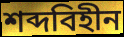
শব্দবিহীন